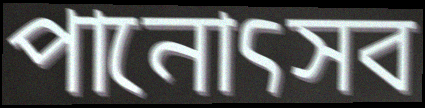
পানোৎসব